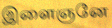
இளைஞனே